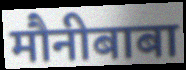
मौनीबाबा